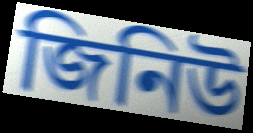
জিনিউ